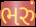
ભરું